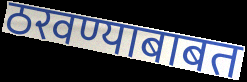
ठरवण्याबाबत